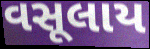
વસૂલાય